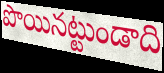
పొయినట్టుండాది